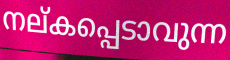
നല്കപ്പെടാവുന്ന